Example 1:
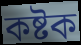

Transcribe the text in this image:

কষ্টক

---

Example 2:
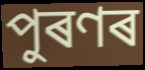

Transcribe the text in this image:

পুৰণৰ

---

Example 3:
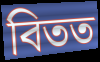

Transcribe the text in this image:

বিতত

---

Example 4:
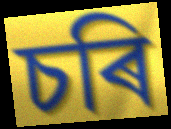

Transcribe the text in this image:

চৰি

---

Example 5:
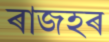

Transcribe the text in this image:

ৰাজহৰ